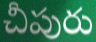
చీపురు